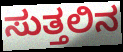
ಸುತ್ತಲಿನ